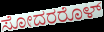
ಸೋದರರೊಳ್